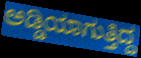
ಅಡ್ಡಿಯಾಗುತ್ತಿದ್ದ